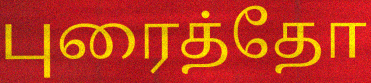
புரைத்தோ